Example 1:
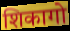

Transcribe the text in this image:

शिकागो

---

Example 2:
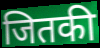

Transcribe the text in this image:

जितकी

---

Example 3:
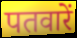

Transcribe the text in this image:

पतवारें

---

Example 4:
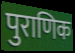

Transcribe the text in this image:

पुराणिक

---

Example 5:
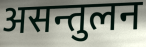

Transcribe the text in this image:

असन्तुलन